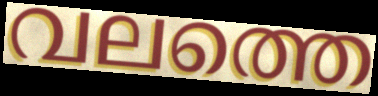
വലത്തെ